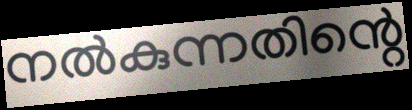
നൽകുന്നതിന്റെ